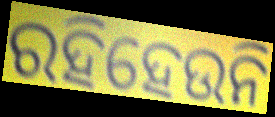
ରହିହେଉନି